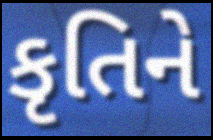
કૃતિને